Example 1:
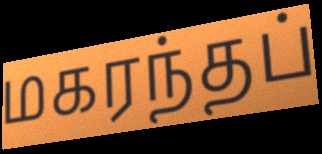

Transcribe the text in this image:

மகரந்தப்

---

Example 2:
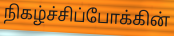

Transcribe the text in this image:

நிகழ்ச்சிப்போக்கின்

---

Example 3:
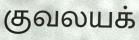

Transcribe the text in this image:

குவலயக்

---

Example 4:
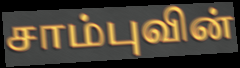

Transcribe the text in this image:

சாம்புவின்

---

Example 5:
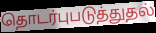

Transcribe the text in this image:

தொடர்புபடுத்துதல்